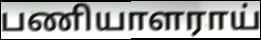
பணியாளராய்